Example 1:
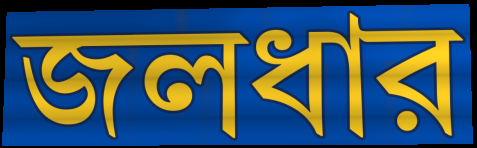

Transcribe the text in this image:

জলধার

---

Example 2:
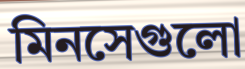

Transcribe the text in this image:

মিনসেগুলো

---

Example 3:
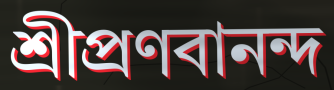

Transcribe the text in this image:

শ্রীপ্রণবানন্দ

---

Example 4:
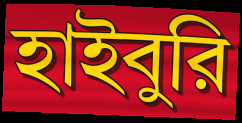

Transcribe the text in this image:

হাইবুরি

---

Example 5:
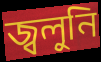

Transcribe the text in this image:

জ্বলুনি